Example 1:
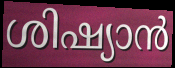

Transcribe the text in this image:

ശിഷ്യാൻ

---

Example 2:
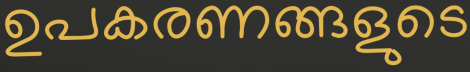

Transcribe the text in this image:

ഉപകരണങ്ങളുടെ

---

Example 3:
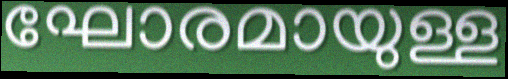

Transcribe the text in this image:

ഘോരമായുള്ള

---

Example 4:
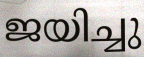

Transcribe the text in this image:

ജയിച്ചു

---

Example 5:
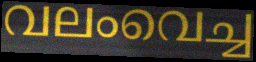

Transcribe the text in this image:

വലംവെച്ച